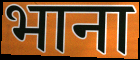
भाना